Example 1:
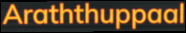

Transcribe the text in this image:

Araththuppaal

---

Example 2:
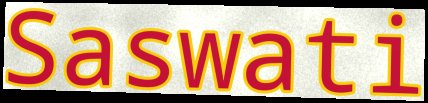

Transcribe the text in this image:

Saswati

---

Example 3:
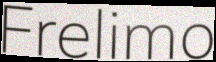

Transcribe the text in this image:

Frelimo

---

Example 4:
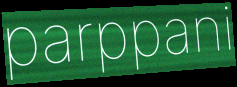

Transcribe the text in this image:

parppani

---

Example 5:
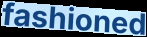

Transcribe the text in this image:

fashioned